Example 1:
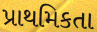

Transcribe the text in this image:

પ્રાથમિકતા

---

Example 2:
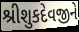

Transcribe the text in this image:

શ્રીશુકદેવજીને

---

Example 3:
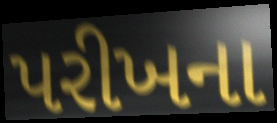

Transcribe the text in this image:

પરીખના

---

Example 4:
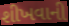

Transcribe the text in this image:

શીખવાની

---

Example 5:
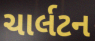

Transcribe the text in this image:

ચાર્લટન